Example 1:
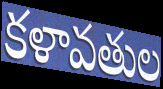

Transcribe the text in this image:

కళావతుల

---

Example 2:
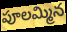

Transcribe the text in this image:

పూలమ్మిన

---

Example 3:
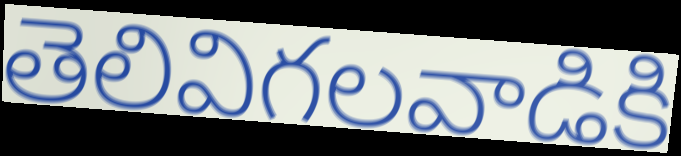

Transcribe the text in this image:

తెలివిగలవాడికి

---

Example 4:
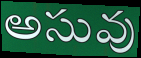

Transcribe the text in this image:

అసువు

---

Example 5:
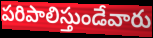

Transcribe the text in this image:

పరిపాలిస్తుండేవారు